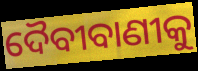
ଦୈବୀବାଣୀକୁ